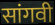
सांगवी